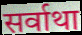
सर्वाथा